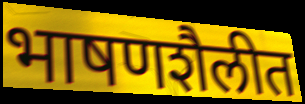
भाषणशैलीत